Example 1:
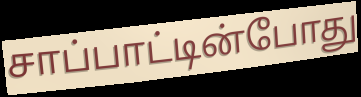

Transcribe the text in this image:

சாப்பாட்டின்போது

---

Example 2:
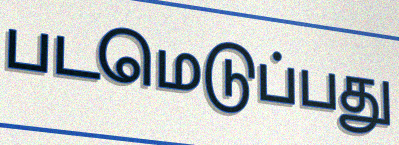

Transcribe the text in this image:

படமெடுப்பது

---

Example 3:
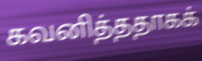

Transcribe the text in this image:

கவனித்ததாகக்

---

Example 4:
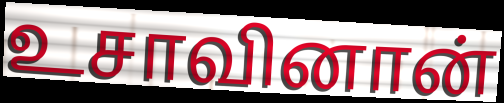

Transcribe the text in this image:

உசாவினான்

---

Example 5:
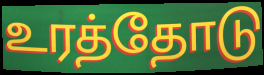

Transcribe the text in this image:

உரத்தோடு